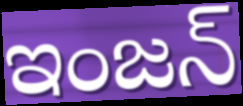
ఇంజన్